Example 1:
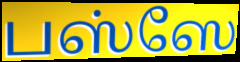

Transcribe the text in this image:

பஸ்ஸே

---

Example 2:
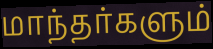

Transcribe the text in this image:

மாந்தர்களும்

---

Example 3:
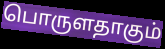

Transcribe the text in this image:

பொருளதாகும்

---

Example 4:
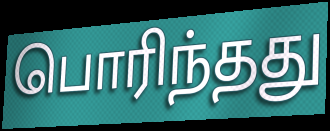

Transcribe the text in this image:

பொரிந்தது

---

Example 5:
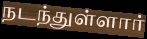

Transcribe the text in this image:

நடந்துள்ளார்